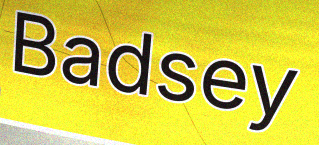
Badsey